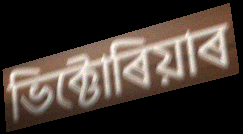
ভিক্টোৰিয়াৰ